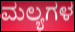
ಮಲ್ಯಗಳ